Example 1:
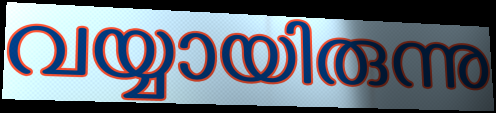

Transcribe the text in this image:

വയ്യായിരുന്നു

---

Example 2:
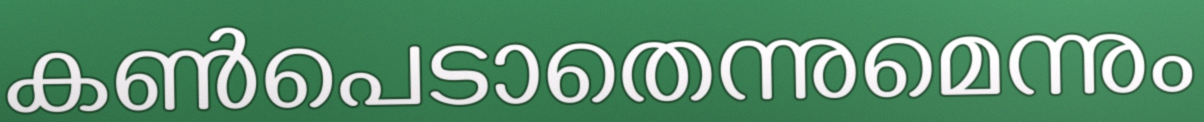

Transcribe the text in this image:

കൺപെടാതെന്നുമെന്നും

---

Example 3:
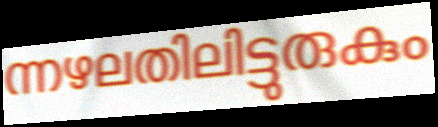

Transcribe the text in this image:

ന്നഴലതിലിട്ടുരുകും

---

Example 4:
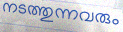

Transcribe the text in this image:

നടത്തുന്നവരും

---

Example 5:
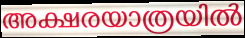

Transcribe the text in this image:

അക്ഷരയാത്രയിൽ